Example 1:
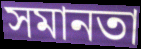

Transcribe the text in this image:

সমানতা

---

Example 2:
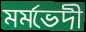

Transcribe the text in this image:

মৰ্মভেদী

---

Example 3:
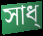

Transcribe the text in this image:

সাধ্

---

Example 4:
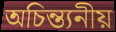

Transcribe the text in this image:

অচিন্ত্যনীয়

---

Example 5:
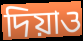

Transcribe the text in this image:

দিয়াও